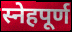
स्नेहपूर्ण